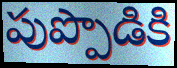
పుప్పొడికి